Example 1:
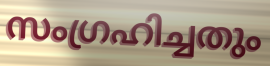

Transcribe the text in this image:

സംഗ്രഹിച്ചതും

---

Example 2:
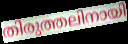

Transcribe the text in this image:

തിരുത്തലിനായി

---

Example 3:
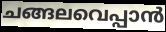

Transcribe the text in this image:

ചങ്ങലവെപ്പാൻ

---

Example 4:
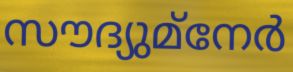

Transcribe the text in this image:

സൗദ്യുമ്നേർ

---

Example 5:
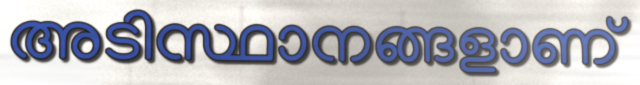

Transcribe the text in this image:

അടിസ്ഥാനങ്ങളാണ്